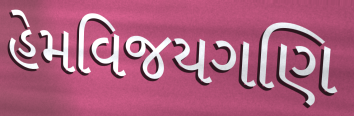
હેમવિજયગણિ